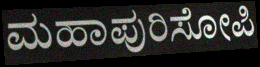
ಮಹಾಪುರಿಸೋಪಿ